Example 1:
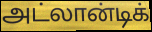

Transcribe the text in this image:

அட்லான்டிக்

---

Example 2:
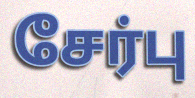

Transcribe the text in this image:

சேர்பு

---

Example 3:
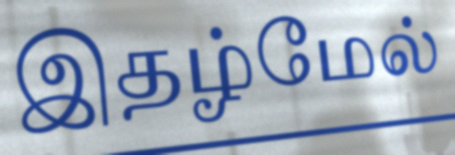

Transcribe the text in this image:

இதழ்மேல்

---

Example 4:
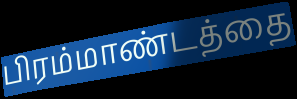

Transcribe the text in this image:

பிரம்மாண்டத்தை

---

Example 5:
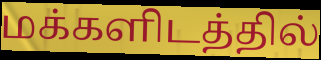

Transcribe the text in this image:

மக்களிடத்தில்